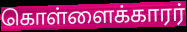
கொள்ளைக்காரர்